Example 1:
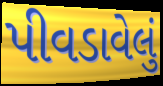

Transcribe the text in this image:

પીવડાવેલું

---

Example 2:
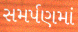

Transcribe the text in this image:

સમર્પણમાં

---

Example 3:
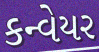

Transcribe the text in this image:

કન્વેયર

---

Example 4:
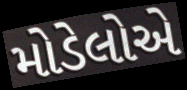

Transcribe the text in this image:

મોડેલોએ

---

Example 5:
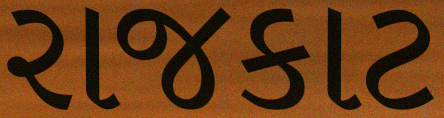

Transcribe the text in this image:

રાજકાટ